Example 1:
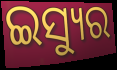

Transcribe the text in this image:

ଇସ୍ୟୁର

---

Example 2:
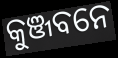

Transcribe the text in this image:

କୁଞ୍ଜବନେ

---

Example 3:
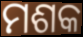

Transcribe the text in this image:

ମଶକ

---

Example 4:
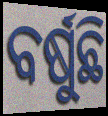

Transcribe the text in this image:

ବର୍ଷୁଛି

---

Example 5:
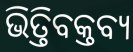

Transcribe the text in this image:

ଭିତ୍ତିବକ୍ତବ୍ୟ